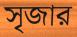
সৃজার